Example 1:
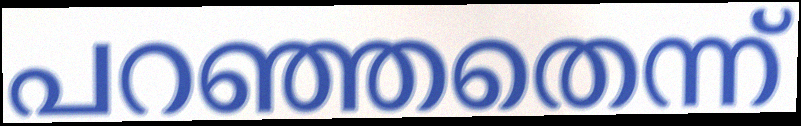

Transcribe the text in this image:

പറഞ്ഞതെന്ന്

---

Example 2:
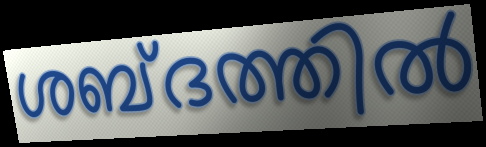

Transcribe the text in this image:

ശബ്ദത്തിൽ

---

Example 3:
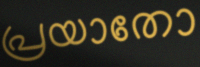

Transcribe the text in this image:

പ്രയാതോ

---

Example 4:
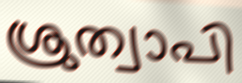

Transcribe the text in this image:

ശ്രുത്വാപി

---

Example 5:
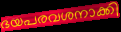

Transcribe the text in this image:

ഭയപരവശനാക്കി